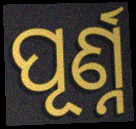
ପୂର୍ଣ୍ନ